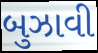
બુઝાવી